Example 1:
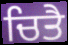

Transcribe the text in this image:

ਚਿਤੈ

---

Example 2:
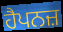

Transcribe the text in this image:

ਹੈਪਨਜ਼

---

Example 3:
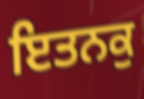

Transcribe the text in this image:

ਇਤਨਕੁ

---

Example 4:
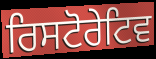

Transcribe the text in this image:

ਰਿਸਟੋਰੇਟਿਵ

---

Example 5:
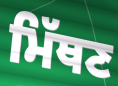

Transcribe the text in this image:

ਮਿੱਥਣ